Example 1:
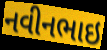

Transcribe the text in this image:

નવીનભાઇ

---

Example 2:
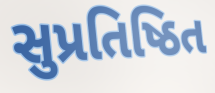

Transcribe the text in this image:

સુપ્રતિષ્ઠિત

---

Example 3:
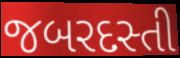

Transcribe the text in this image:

જબરદસ્તી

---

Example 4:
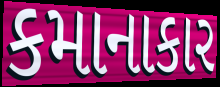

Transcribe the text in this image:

કમાનાકાર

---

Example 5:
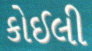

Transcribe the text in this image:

કોઈલી